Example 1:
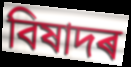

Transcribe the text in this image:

বিষাদৰ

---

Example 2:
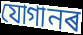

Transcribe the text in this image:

যোগানৰ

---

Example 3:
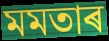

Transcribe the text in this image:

মমতাৰ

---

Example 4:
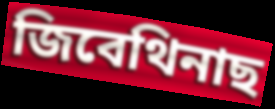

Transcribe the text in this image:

জিবেথিনাছ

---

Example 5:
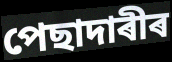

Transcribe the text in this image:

পেছাদাৰীৰ